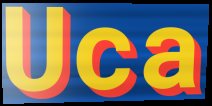
Uca